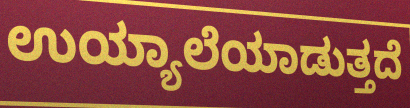
ಉಯ್ಯಾಲೆಯಾಡುತ್ತದೆ